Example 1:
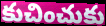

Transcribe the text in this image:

కుచించుకు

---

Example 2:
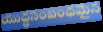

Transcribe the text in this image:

యుద్ధసంబంధమైన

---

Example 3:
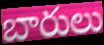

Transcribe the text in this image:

బారులు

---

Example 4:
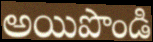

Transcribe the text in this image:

అయిపొండి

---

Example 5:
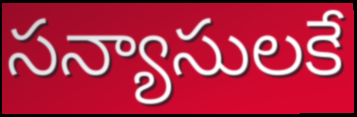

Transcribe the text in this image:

సన్యాసులకే